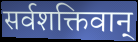
सर्वशक्तिवान्